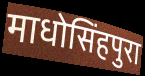
माधोसिंहपुरा